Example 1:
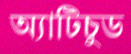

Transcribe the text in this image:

অ্যাটিচুড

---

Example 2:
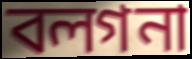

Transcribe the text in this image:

বলগনা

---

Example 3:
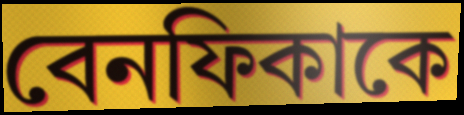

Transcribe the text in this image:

বেনফিকাকে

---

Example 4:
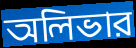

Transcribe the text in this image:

অলিভার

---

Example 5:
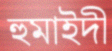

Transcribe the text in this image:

হুমাইদী